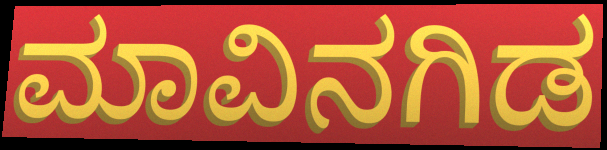
ಮಾವಿನಗಿಡ